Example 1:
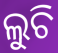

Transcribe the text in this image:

ଲୁଚି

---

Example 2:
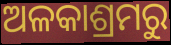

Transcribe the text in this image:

ଅଳକାଶ୍ରମରୁ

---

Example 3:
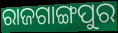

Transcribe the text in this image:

ରାଜଗାଙ୍ଗପୁର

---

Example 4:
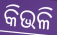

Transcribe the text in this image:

କିଭଳି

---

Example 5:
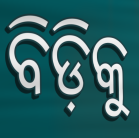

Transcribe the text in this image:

ବିଡ଼ିକୁ